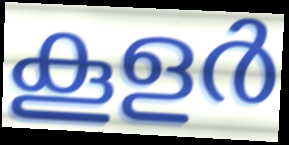
കൂളർ